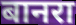
बानरा